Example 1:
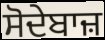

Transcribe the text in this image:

ਸੋਦੇਬਾਜ਼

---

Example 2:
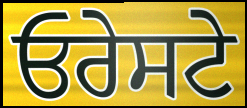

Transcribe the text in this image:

ਓਰੇਸਟੇ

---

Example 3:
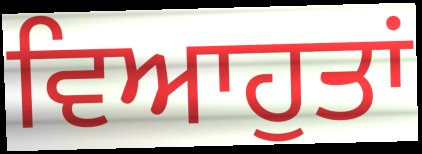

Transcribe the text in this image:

ਵਿਆਹੁਤਾਂ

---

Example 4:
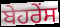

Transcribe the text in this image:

ਬੇਹਰੇਂਸ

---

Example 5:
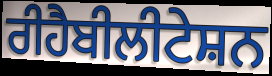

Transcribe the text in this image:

ਰੀਹੈਬੀਲੀਟੇਸ਼ਨ